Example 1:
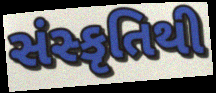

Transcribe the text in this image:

સંસ્કૃતિથી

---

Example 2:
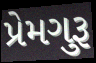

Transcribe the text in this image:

પ્રેમગુરૂ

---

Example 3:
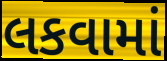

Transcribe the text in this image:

લકવામાં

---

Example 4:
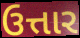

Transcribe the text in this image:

ઉત્તાર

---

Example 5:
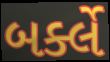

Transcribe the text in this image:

બર્ક્લે